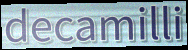
decamilli